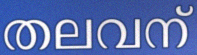
തലവന്